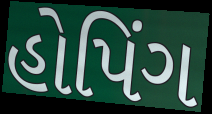
હોપિંગ